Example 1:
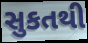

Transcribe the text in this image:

સુકતથી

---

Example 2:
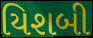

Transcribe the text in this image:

યિશબી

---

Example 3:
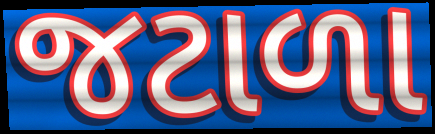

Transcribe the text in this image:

જટાળા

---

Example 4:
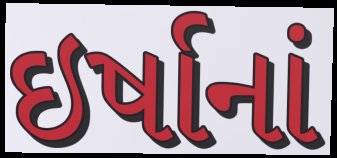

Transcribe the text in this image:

ઇર્ષાનાં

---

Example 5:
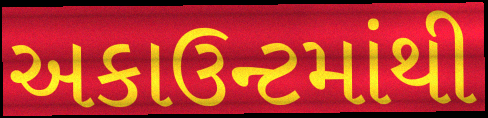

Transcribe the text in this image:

અકાઉન્ટમાંથી